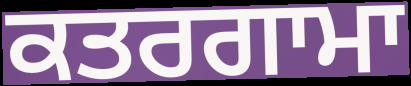
ਕਤਰਗਾਮਾ